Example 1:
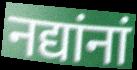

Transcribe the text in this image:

नद्यांनां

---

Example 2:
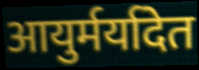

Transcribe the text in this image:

आयुर्मर्यादेत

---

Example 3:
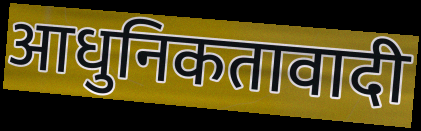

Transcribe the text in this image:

आधुनिकतावादी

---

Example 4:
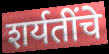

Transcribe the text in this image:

शर्यतींचे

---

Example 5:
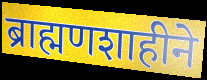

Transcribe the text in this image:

ब्राह्मणशाहीने